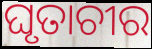
ଘୃତାଚୀର